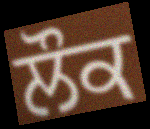
ਲੌਕ